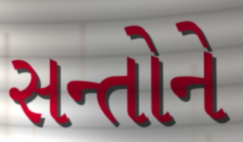
સન્તોને